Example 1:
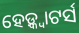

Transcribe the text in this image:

ହେଡ଼୍କ୍ୱାଟର୍ସ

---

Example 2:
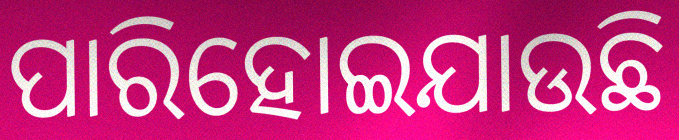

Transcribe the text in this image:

ପାରିହୋଇଯାଉଛି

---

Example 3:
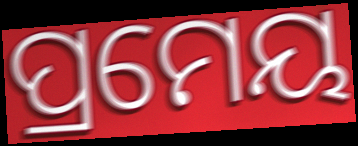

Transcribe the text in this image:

ପ୍ରମେୟ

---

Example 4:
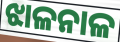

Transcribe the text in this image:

ଝାଳନାଳ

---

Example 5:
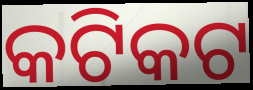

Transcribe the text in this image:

କଟିକଟ